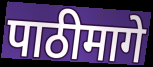
पाठीमागे